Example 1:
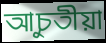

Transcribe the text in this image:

আচুতীয়া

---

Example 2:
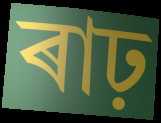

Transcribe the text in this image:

ৰাঢ়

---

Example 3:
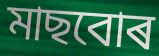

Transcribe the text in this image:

মাছবোৰ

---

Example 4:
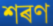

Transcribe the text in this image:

শৰণ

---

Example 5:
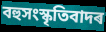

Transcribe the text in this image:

বহুসংস্কৃতিবাদৰ